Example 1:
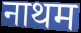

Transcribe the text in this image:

नाथम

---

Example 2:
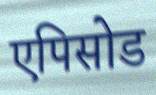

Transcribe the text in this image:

एपिसोड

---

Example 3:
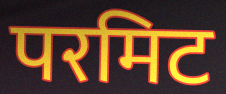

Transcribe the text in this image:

परमिट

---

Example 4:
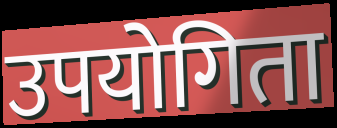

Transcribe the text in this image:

उपयोगिता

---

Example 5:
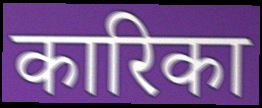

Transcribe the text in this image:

कारिका